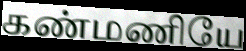
கண்மணியே